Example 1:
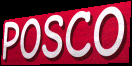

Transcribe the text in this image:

POSCO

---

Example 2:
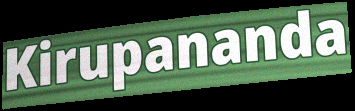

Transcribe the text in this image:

Kirupananda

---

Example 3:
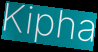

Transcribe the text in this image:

Kipha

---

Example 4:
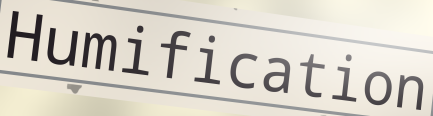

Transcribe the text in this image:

Humification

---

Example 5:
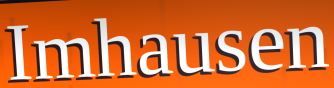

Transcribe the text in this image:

Imhausen